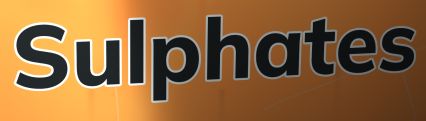
Sulphates